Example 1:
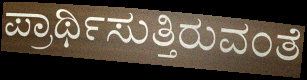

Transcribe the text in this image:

ಪ್ರಾರ್ಥಿಸುತ್ತಿರುವಂತೆ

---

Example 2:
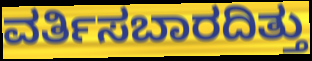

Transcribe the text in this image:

ವರ್ತಿಸಬಾರದಿತ್ತು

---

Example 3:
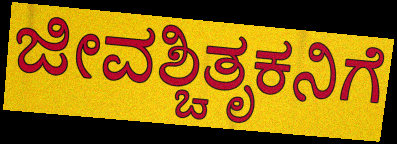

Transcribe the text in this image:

ಜೀವಶ್ಚಿತೃಕನಿಗೆ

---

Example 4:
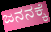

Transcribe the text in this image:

ಜನನಕ್ಕೆ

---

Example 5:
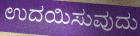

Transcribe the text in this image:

ಉದಯಿಸುವುದು